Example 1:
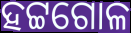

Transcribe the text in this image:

ହଟ୍ଟଗୋଳ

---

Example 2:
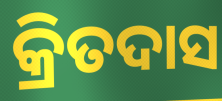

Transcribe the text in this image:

କ୍ରିତଦାସ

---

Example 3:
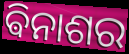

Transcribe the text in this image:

ଵିନାଶର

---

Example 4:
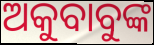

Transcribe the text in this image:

ଅକୁବାବୁଙ୍କ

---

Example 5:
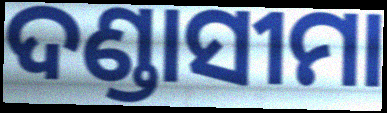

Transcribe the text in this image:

ଦଣ୍ଡାସୀମା